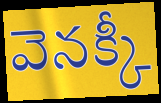
వెనక్కీ